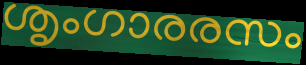
ശൃംഗാരരസം